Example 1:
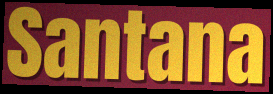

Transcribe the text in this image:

Santana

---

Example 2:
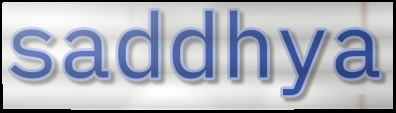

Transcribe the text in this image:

saddhya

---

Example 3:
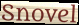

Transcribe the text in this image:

Snovel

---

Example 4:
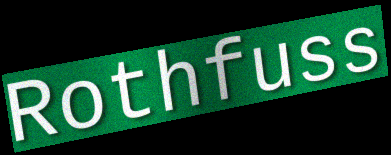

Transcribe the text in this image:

Rothfuss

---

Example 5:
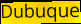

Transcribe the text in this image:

Dubuque